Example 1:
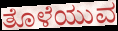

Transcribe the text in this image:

ತೊಳೆಯುವ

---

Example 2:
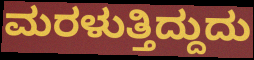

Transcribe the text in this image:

ಮರಳುತ್ತಿದ್ದುದು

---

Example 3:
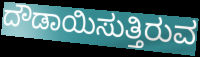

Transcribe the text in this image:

ದೌಡಾಯಿಸುತ್ತಿರುವ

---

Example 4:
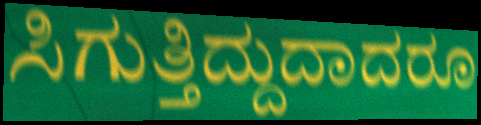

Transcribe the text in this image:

ಸಿಗುತ್ತಿದ್ದುದಾದರೂ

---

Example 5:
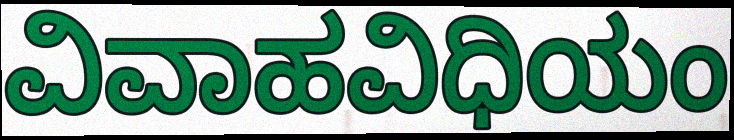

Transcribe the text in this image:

ವಿವಾಹವಿಧಿಯಂ